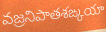
వజ్రనిపాతశఙ్కయా